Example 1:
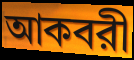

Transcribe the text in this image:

আকবরী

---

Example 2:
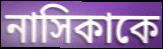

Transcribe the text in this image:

নাসিকাকে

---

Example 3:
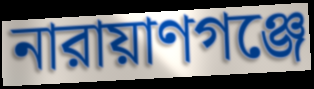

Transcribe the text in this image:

নারায়াণগঞ্জে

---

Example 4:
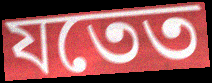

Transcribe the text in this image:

যতেত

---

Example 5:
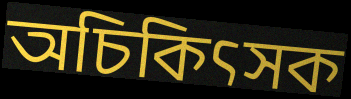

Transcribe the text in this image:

অচিকিৎসক